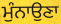
ਮੁੰਨਾਉਣਾ